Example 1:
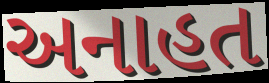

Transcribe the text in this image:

અનાહત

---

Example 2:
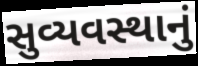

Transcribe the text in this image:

સુવ્યવસ્થાનું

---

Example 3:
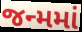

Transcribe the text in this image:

જન્મમાં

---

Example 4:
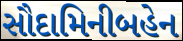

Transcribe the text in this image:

સૌદામિનીબહેન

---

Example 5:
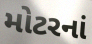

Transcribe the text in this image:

મોટરનાં